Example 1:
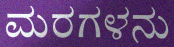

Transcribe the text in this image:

ಮರಗಳನು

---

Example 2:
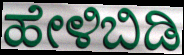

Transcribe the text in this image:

ಹೇಳಿಬಿಡಿ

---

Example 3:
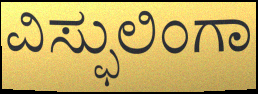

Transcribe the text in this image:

ವಿಸ್ಫುಲಿಂಗಾ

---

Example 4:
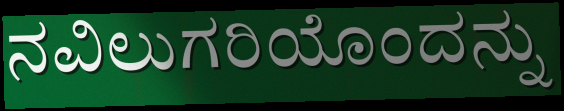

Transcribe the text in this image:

ನವಿಲುಗರಿಯೊಂದನ್ನು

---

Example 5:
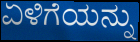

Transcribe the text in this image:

ಏಳಿಗೆಯನ್ನು